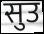
सुउ